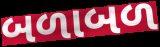
બળાબળ